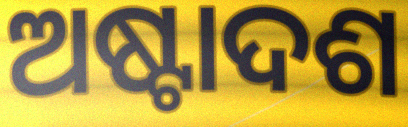
ଅଷ୍ଟାଦଶ